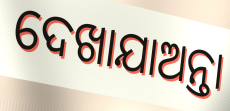
ଦେଖାଯାଅନ୍ତା